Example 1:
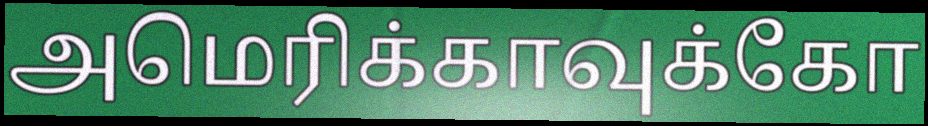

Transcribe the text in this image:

அமெரிக்காவுக்கோ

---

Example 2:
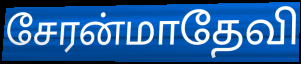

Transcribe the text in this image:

சேரன்மாதேவி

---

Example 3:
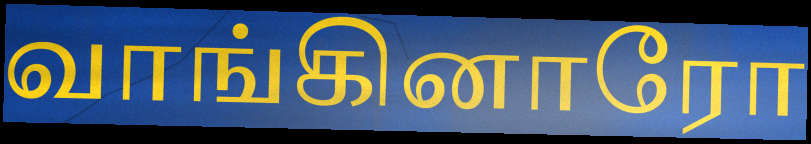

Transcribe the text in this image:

வாங்கினாரோ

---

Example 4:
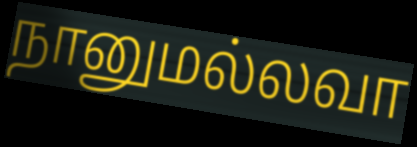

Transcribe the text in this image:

நானுமல்லவா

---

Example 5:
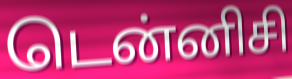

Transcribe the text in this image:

டென்னிசி